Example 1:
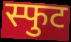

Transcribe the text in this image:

स्फुट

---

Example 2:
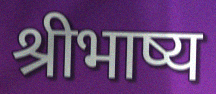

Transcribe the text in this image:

श्रीभाष्य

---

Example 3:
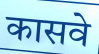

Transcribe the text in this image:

कासवे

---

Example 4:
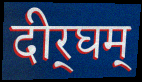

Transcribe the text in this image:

दीर्घम्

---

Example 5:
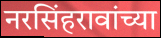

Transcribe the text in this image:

नरसिंहरावांच्या